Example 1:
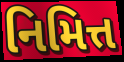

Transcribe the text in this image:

નિમિત્ત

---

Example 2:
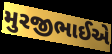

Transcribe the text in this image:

મુરજીભાઈએ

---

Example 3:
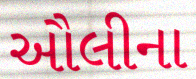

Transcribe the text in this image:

ઔલીના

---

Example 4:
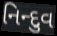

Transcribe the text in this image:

નિન્દુવ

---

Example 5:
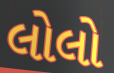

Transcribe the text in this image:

લોલો